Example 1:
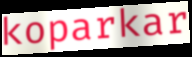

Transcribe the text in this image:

koparkar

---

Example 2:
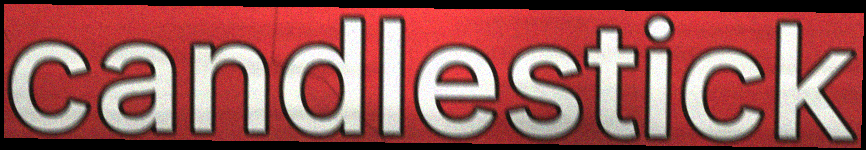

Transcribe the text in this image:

candlestick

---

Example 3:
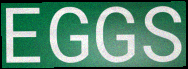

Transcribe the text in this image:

EGGS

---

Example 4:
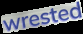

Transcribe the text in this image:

wrested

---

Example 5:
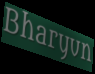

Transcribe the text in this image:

Bharyun